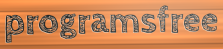
programsfree